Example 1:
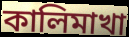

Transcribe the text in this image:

কালিমাখা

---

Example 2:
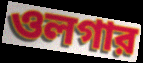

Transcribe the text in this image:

ওলগার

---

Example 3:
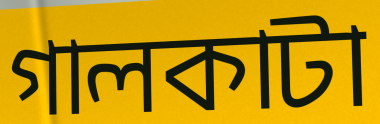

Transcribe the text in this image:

গালকাটা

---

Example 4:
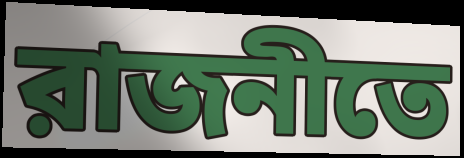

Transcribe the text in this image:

রাজনীতে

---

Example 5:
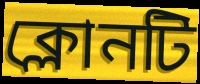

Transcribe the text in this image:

ক্লোনটি